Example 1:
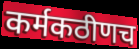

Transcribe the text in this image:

कर्मकठीणच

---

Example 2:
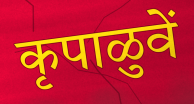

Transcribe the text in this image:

कृपाळुवें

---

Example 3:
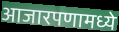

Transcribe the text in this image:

आजारपणामध्ये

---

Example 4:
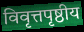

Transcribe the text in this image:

विवृत्तपृष्ठीय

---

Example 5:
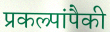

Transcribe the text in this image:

प्रकल्पांपैकी